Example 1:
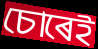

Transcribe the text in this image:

চোৰেই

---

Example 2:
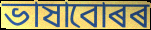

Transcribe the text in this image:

ভাষাবোৰৰ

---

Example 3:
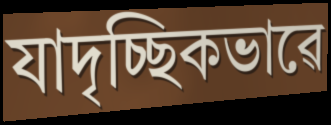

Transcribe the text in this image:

যাদৃচ্ছিকভাৱে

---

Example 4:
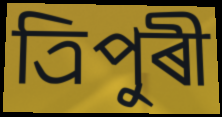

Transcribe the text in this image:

ত্ৰিপুৰী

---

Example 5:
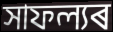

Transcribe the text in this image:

সাফল্যৰ